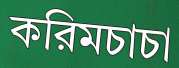
করিমচাচা